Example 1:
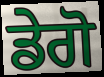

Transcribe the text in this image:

ਡੇਗੋ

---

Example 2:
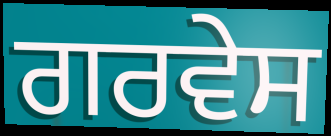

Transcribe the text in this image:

ਗਰਵੇਸ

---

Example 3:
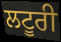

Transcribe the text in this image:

ਲਟੂਰੀ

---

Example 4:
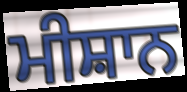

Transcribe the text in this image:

ਮੀਸ਼ਾਨ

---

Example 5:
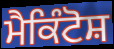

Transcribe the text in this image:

ਮੈਕਿੰਟੋਸ਼